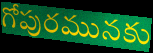
గోపురమునకు